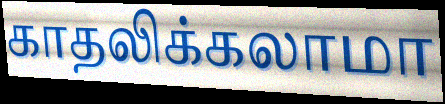
காதலிக்கலாமா